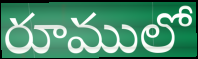
రూములో